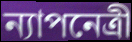
ন্যাপনেত্রী